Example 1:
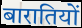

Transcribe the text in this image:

बारातियों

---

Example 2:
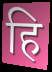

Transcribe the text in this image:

हि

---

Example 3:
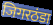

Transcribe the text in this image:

जिगरठंडा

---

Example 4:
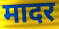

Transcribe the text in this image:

मादर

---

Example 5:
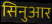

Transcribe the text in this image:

सिनुआर